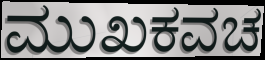
ಮುಖಕವಚ